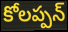
కోలప్పన్